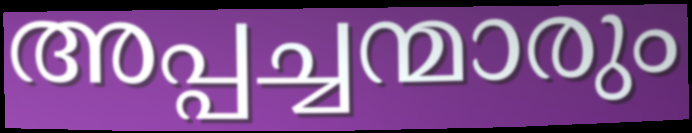
അപ്പച്ചന്മാരും